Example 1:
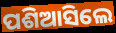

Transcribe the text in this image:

ପଶିଆସିଲେ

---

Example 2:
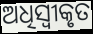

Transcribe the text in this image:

ଅଧିସ୍ୱୀକୃତ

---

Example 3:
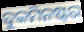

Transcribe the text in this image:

ବୁକମିନଷ୍ଟର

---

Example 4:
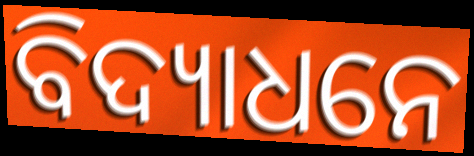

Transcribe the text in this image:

ବିଦ୍ୟାଧନେ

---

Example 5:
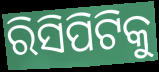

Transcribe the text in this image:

ରିସିପିଟିକୁ